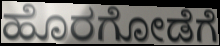
ಹೊರಗೋಡೆಗೆ